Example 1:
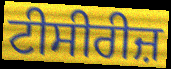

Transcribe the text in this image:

ਟੀਸੀਰੀਜ਼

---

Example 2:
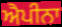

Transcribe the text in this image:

ਐਪੀਨਾ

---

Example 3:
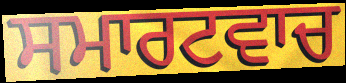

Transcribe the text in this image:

ਸਮਾਰਟਵਾਚ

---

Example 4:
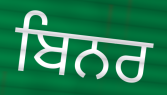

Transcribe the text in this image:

ਬਿਨਰ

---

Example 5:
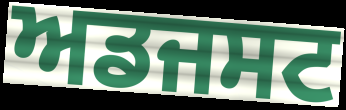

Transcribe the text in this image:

ਅਡਜਸਟ